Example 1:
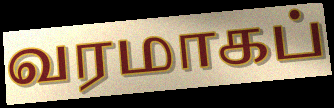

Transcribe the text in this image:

வரமாகப்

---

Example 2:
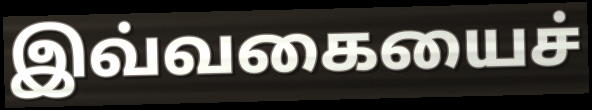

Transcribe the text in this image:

இவ்வகையைச்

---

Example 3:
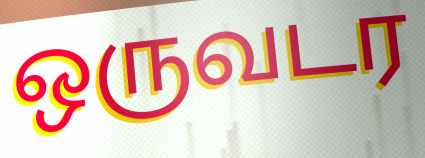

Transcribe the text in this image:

ஒருவடர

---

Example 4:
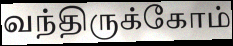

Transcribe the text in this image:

வந்திருக்கோம்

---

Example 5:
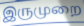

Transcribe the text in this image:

இருமுறை